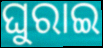
ଘୁରାଇ